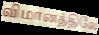
விமானத்திலே